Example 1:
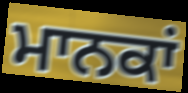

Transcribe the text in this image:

ਮਾਨਕਾਂ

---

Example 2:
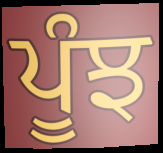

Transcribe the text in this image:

ਪੂੰਝ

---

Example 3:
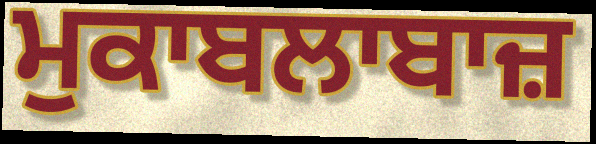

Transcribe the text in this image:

ਮੁਕਾਬਲਾਬਾਜ਼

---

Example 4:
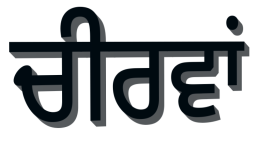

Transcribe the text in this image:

ਚੀਰਵਾਂ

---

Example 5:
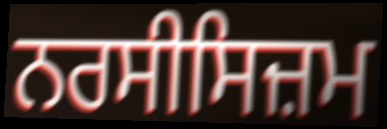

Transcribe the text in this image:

ਨਰਸੀਸਿਜ਼ਮ